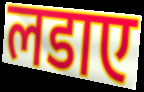
लडाए